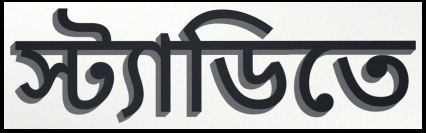
স্ট্যাডিতে